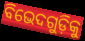
ବିଭେଦଗୁଡ଼ିକୁ